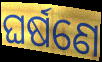
ଘର୍ଷଣେ